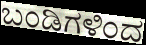
ಬಂಡಿಗಳಿಂದ